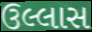
ઉલ્લાસ